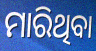
ମାରିଥିବା